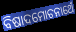
ବିଷାଦମୋଚନାର୍ଥେ